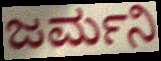
ಜರ್ಮನಿ